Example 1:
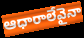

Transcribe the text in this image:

ఆధారాలేవైనా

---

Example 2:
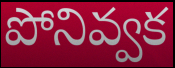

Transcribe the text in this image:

పోనివ్వక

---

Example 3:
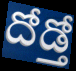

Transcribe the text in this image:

దోడ్తో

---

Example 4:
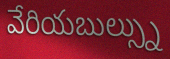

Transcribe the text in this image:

వేరియబుల్స్ను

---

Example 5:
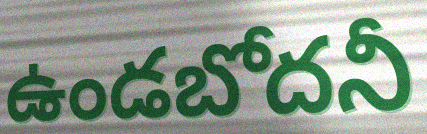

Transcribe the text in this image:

ఉండబోదనీ